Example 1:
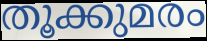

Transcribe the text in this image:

തൂക്കുമരം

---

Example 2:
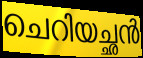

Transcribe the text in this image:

ചെറിയച്ഛൻ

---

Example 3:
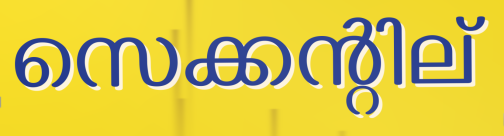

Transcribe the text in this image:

സെക്കന്റില്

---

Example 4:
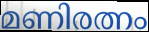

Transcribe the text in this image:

മണിരത്നം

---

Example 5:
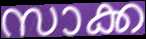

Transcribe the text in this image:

സാക്ക